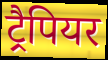
ट्रैपियर